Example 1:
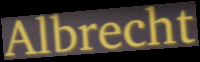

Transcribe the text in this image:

Albrecht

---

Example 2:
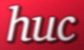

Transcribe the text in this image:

huc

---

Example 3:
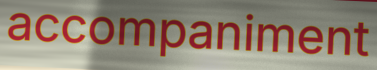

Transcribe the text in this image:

accompaniment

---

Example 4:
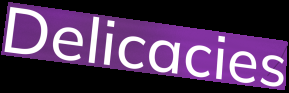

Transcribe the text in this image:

Delicacies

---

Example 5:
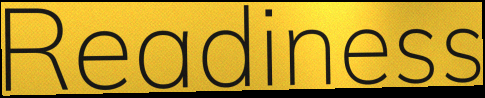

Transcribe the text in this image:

Readiness